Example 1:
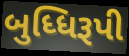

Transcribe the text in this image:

બુધ્ધિરૂપી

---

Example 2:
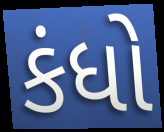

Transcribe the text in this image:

કંધો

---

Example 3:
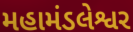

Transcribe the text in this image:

મહામંડલેશ્વર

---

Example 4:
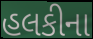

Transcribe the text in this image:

હલકીના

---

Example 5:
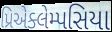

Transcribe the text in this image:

પ્રિએક્લેમ્પસિયા